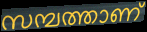
സമ്പത്താണ്